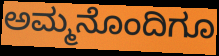
ಅಮ್ಮನೊಂದಿಗೂ